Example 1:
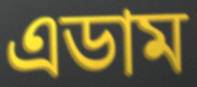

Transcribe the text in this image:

এডাম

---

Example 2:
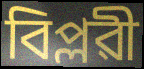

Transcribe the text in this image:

বিপ্লৱী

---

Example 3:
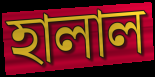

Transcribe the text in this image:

হালাল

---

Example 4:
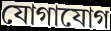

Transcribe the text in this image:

যোগাযোগ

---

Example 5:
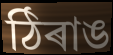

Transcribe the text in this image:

ঠিৰাঙ